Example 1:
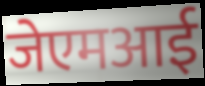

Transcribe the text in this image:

जेएमआई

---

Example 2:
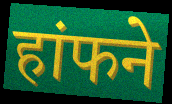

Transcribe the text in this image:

हांफने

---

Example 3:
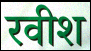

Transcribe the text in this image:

रवीश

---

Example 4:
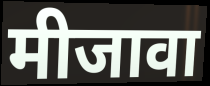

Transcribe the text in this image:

मीजावा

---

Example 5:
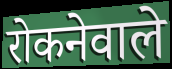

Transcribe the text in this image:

रोकनेवाले